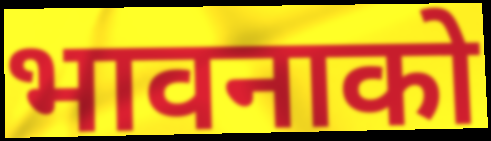
भावनाको